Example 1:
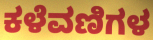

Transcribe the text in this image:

ಕಳೆವಣಿಗಳ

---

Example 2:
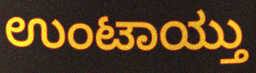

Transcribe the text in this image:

ಉಂಟಾಯ್ತು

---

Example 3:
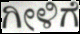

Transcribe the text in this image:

ಗೀಳಿಗೆ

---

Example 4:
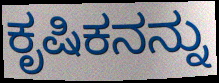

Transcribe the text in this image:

ಕೃಷಿಕನನ್ನು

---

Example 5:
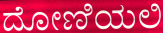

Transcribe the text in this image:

ದೋಣಿಯಲಿ